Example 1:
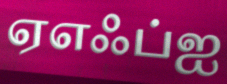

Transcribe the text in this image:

ஏஎஃப்ஐ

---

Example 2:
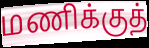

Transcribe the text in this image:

மணிக்குத்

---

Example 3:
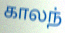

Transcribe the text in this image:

காலந்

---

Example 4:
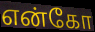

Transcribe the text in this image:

என்கோ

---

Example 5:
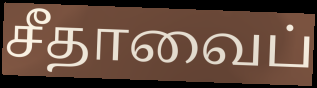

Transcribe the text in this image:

சீதாவைப்